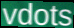
vdots